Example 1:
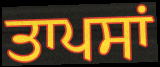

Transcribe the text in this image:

ਤਾਪਸਾਂ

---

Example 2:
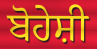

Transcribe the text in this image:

ਬੋਹੇਸ਼ੀ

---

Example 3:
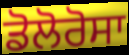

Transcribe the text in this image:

ਡੋਲੋਰੋਸਾ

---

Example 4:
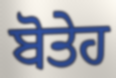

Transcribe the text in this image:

ਬੋਤੇਹ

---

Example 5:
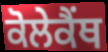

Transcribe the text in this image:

ਕੋਲੇਕੈਂਥ